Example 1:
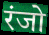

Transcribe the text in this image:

रंजो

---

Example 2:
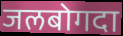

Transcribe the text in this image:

जलबोगदा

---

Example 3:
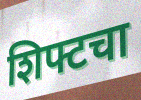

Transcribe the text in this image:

शिफ्टचा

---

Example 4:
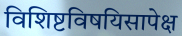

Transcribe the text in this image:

विशिष्टविषयिसापेक्ष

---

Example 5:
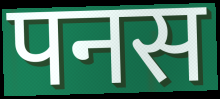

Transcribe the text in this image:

पनस